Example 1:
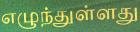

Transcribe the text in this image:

எழுந்துள்ளது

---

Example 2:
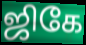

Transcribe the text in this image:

ஜிகே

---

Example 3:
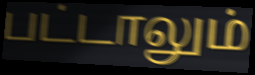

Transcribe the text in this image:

பட்டாலும்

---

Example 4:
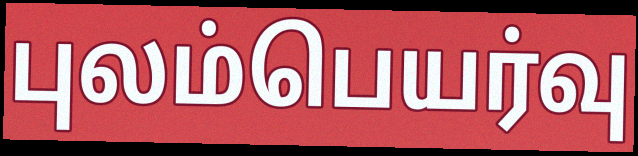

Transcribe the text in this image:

புலம்பெயர்வு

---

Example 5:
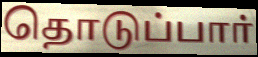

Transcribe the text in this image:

தொடுப்பார்